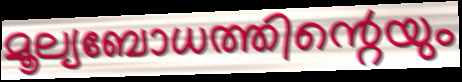
മൂല്യബോധത്തിന്റെയും